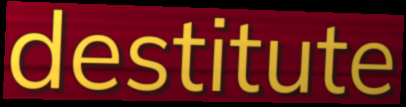
destitute